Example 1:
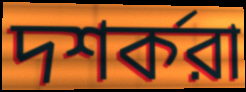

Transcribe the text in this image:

দশর্করা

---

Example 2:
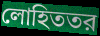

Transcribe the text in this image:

লোহিততর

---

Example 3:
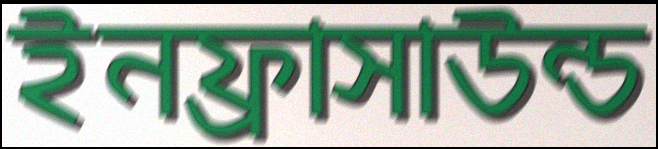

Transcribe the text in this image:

ইনফ্রাসাউন্ড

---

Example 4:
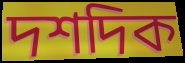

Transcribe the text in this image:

দশদিক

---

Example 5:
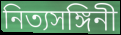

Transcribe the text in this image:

নিত্যসঙ্গিনী